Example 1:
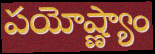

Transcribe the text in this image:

పయోష్ణ్యాం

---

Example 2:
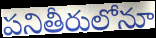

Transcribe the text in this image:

పనితీరులోనూ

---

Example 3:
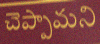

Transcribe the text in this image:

చెప్పామని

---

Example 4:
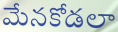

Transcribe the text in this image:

మేనకోడలా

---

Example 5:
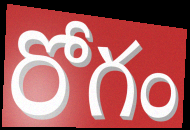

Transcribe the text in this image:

రోగం